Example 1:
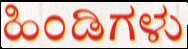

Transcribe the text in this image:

ಹಿಂಡಿಗಳು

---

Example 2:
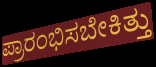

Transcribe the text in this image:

ಪ್ರಾರಂಭಿಸಬೇಕಿತ್ತು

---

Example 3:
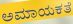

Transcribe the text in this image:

ಅಮಾಯಕತೆ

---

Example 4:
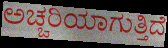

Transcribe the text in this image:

ಅಚ್ಚರಿಯಾಗುತ್ತಿದೆ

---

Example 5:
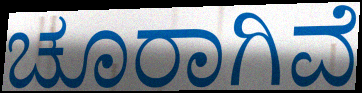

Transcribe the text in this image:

ಚೂರಾಗಿವೆ